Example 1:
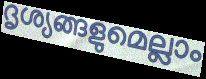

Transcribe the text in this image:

ദൃശ്യങ്ങളുമെല്ലാം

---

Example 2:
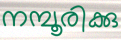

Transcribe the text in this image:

നമ്പൂരിക്കു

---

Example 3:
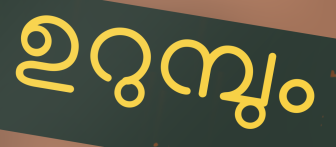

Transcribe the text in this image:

ഉറുമ്പും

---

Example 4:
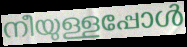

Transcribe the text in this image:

നീയുള്ളപ്പോൾ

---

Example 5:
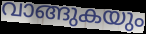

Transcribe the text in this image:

വാങ്ങുകയും